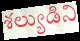
శల్యుడిని